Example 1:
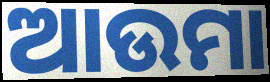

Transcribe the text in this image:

ଆଉମା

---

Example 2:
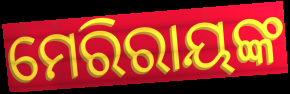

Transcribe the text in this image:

ମେରିରାୟଙ୍କ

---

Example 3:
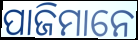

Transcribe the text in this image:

ପାଜିମାନେ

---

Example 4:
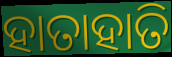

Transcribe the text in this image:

ହାତାହାତି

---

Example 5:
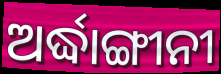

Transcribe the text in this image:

ଅର୍ଦ୍ଧାଙ୍ଗୀନୀ